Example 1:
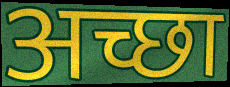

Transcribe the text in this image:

अच्‍छा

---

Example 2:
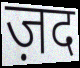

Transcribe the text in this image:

ज़द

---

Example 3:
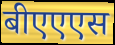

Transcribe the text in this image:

बीएएएस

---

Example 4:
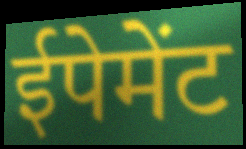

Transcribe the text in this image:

ईपेमेंट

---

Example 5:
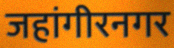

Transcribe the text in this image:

जहांगीरनगर